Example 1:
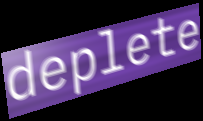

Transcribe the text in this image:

deplete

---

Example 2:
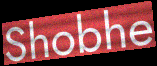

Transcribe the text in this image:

Shobhe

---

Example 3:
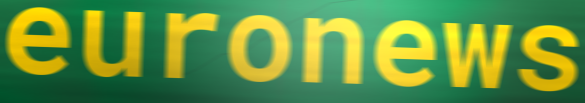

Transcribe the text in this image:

euronews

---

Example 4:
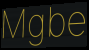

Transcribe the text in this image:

Mgbe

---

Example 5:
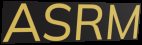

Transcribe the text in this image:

ASRM